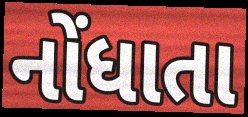
નોંધાતા